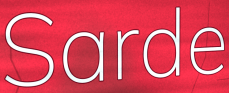
Sarde